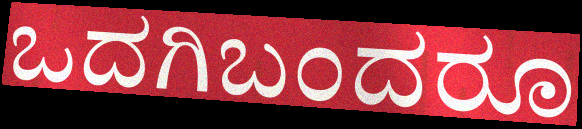
ಒದಗಿಬಂದರೂ